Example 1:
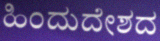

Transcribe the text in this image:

ಹಿಂದುದೇಶದ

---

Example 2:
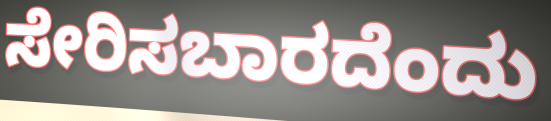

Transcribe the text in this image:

ಸೇರಿಸಬಾರದೆಂದು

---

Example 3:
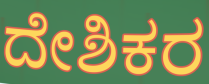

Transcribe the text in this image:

ದೇಶಿಕರ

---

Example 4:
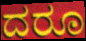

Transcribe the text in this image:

ದರೂ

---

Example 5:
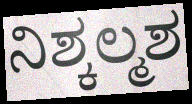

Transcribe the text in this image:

ನಿಶ್ಕಲ್ಮಶ